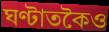
ঘণ্টাতকৈও